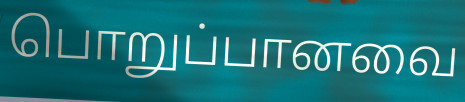
பொறுப்பானவை